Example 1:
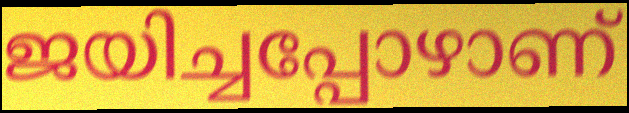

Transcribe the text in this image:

ജയിച്ചപ്പോഴാണ്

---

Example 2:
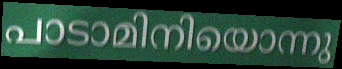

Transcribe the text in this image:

പാടാമിനിയൊന്നു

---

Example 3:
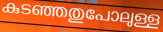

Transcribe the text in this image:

കുടഞ്ഞതുപോലുള്ള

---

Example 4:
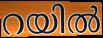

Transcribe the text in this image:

റയിൽ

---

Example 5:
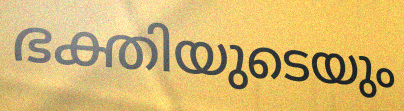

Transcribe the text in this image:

ഭക്തിയുടെയും